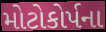
મોટોકોર્પના